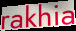
rakhia